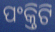
ପଂକ୍ତିଟି